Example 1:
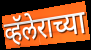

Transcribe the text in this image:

व्हॅलेराच्या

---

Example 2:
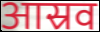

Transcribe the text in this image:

आस्रव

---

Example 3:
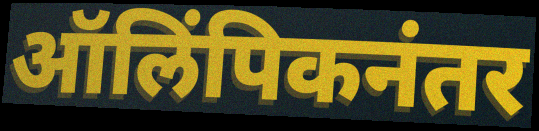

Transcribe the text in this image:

ऑलिंपिकनंतर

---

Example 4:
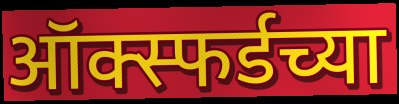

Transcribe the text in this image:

ऑक्स्फर्डच्या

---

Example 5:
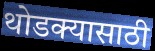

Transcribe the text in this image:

थोडक्यासाठी